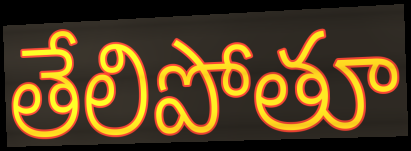
తేలిపోతూ